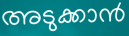
അടുക്കാൻ